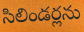
సిలిండర్లను